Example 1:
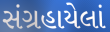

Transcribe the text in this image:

સંગ્રહાયેલાં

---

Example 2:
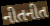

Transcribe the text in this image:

નીતનીત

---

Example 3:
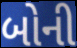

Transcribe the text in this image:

બોની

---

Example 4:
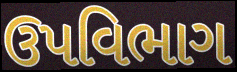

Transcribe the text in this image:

ઉપવિભાગ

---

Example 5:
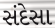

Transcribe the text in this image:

સંદેસા